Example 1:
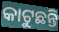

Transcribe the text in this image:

କାଟୁଛନ୍ତି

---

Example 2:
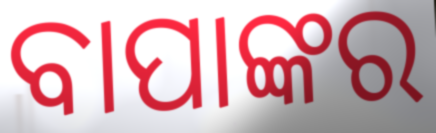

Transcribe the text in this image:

ବାପାଙ୍କର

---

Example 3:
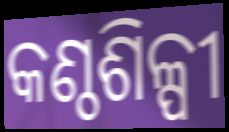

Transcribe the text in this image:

କଣ୍ଠଶିଳ୍ପୀ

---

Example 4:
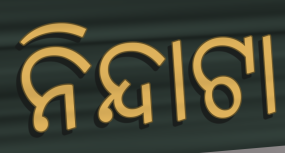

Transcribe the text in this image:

ନିନ୍ଦାଟା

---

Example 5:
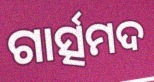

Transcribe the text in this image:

ଗାର୍ତ୍ସମଦ